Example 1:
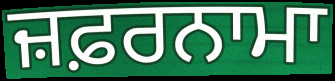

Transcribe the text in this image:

ਜ਼ਫ਼ਰਨਾਮਾ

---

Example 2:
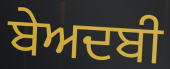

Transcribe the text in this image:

ਬੇਅਦਬੀ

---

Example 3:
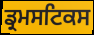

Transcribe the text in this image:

ਡ੍ਰਮਸਟਿਕਸ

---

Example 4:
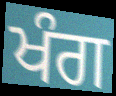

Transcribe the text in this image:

ਖੰਗ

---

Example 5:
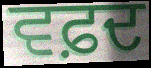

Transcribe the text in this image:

ਵਫ਼ਦ